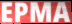
EPMA